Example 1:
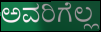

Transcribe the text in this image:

ಅವರಿಗೆಲ್ಲ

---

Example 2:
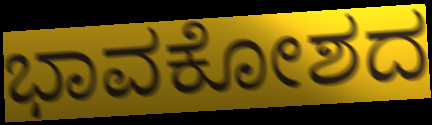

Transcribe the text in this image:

ಭಾವಕೋಶದ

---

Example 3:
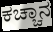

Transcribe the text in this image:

ಕಚ್ಚಾನ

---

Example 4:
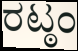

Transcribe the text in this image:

ರಟ್ಠಂ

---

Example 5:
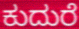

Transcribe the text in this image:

ಕುದುರೆ